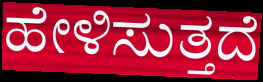
ಹೇಳಿಸುತ್ತದೆ